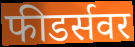
फीडर्सवर